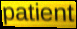
patient